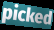
picked